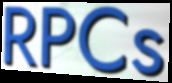
RPCs